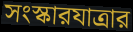
সংস্কারযাত্রার